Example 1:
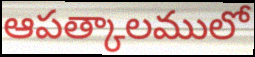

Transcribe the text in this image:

ఆపత్కాలములో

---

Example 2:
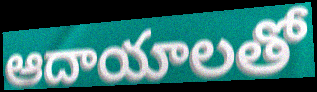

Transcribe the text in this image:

ఆదాయాలతో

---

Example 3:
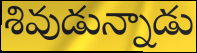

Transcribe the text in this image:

శివుడున్నాడు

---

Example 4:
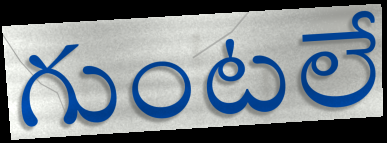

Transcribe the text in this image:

గుంటలే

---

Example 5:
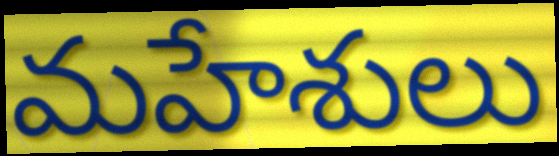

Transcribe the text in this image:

మహేశులు